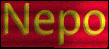
Nepo